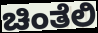
ಚಿಂತೆಲಿ